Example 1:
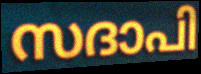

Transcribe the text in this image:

സദാപി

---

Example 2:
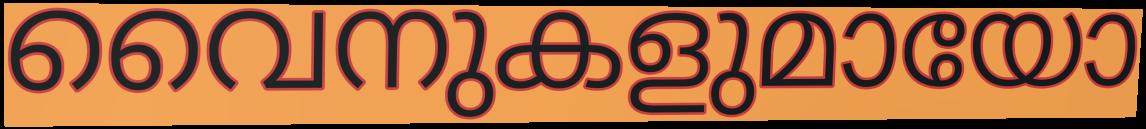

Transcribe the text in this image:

വൈനുകളുമായോ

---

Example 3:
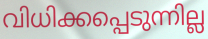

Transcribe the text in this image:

വിധിക്കപ്പെടുന്നില്ല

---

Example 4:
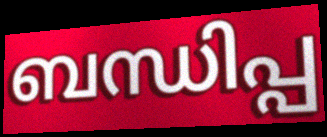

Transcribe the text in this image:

ബന്ധിപ്പ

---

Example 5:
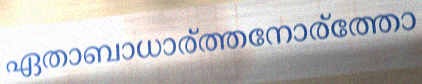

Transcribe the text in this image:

ഏതാബാധാര്ത്തനോര്ത്തോ